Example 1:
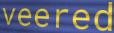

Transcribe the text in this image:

veered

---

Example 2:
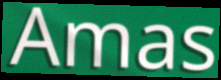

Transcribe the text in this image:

Amas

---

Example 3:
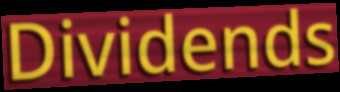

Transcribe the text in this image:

Dividends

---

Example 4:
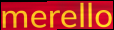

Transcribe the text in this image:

merello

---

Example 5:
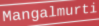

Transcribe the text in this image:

Mangalmurti